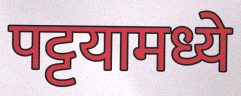
पट्टयामध्ये